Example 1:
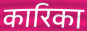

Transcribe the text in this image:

कारिका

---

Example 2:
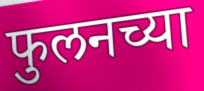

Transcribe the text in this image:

फुलनच्या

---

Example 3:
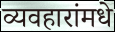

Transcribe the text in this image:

व्यवहारांमधे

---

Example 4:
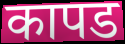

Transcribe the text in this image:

कापड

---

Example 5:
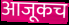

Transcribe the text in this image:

आजूकच